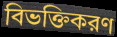
বিভক্তিকরণ